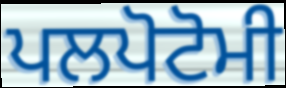
ਪਲਪੋਟੋਮੀ